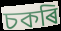
চকৰি